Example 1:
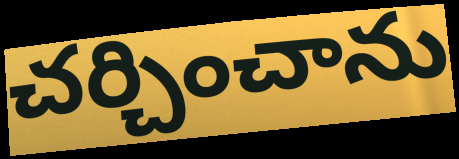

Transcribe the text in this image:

చర్చించాను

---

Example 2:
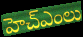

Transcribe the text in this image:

హెచ్ఎంలు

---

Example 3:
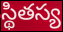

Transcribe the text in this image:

స్థితస్య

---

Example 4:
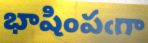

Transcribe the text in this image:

భాషింపఁగా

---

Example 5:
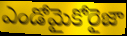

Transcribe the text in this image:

ఎండోమైకోరైజా